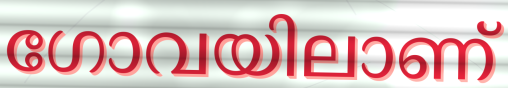
ഗോവയിലാണ്